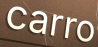
carro